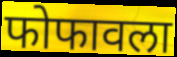
फोफावला